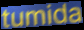
tumida